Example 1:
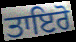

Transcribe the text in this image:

ਤਾਇਰੋ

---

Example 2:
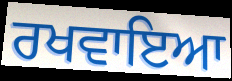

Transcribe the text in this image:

ਰਖਵਾਇਆ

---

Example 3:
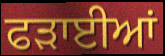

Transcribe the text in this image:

ਫੜਾਈਆਂ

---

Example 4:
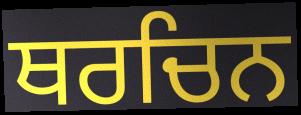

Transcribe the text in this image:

ਥਰਚਿਨ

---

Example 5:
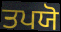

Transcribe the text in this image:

ਤਪਯੋ